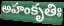
అహంకృతిః